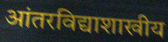
आंतरविद्याशाखीय